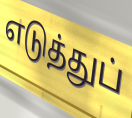
எடுத்துப்